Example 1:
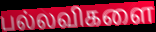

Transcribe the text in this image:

பல்லவிகளை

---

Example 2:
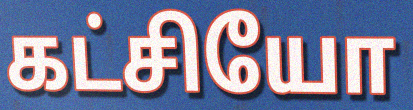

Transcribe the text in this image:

கட்சியோ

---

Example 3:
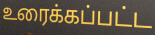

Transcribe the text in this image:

உரைக்கப்பட்ட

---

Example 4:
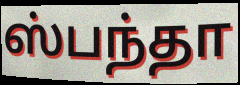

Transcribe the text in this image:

ஸ்பந்தா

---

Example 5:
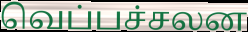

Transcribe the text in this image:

வெப்பச்சலன